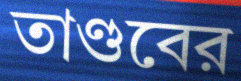
তাণ্ডবের